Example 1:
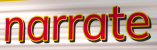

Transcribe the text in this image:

narrate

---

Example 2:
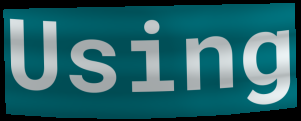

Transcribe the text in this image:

Using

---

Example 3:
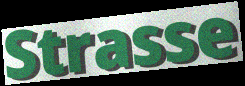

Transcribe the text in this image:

Strasse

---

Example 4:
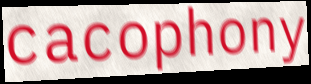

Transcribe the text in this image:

cacophony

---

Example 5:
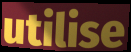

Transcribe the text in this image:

utilise